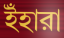
ইঁহারা